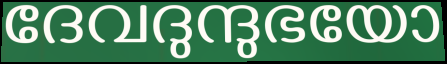
ദേവദുന്ദുഭയോ